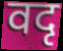
वदृ